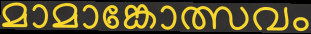
മാമാങ്കോത്സവം